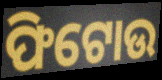
ଫିଟୋଉ